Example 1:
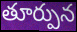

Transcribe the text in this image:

తూర్పున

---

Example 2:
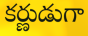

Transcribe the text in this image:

కర్ణుడుగా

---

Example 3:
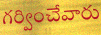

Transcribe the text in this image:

గర్వించేవారు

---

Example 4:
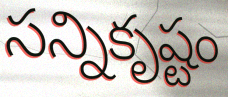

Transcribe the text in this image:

సన్నికృష్టం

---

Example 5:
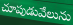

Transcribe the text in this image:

చూపుడువేలును